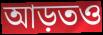
আড়তও